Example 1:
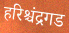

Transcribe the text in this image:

हरिश्चंद्रगड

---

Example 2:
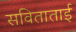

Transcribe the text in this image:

सविताताई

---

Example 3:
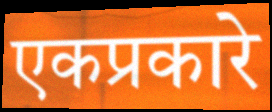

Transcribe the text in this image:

एकप्रकारे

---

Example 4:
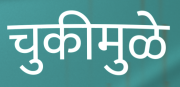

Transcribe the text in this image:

चुकीमुळे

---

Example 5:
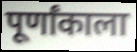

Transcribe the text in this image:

पूर्णांकाला